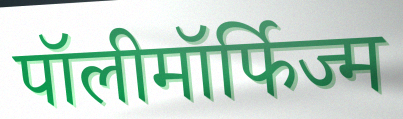
पॉलीमॉर्फिज्म